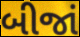
બીજાં